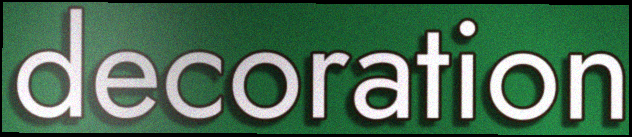
decoration